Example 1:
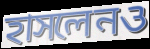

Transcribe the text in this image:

হাসলেনও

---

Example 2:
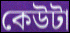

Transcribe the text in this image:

কেউটা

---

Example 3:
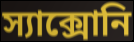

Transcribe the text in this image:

স্যাক্সোনি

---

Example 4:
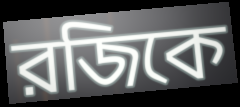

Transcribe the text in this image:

রজিকে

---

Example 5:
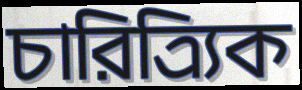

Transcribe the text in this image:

চারিত্র্যিক